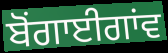
ਬੋਂਗਾਈਗਾਂਵ